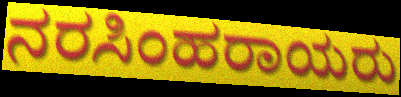
ನರಸಿಂಹರಾಯರು